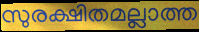
സുരക്ഷിതമല്ലാത്ത